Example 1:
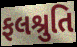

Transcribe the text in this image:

ફલશ્રુતિ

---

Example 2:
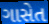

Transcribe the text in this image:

ગાસેત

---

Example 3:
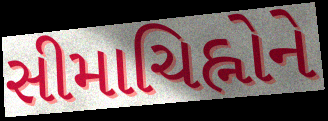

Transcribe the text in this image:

સીમાચિહ્નોને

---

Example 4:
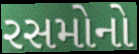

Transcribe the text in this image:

રસમોનો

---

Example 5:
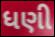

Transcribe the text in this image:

ધણી